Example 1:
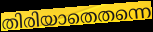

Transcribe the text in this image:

തിരിയാതെതന്നെ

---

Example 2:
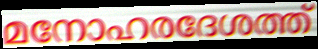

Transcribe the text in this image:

മനോഹരദേശത്ത്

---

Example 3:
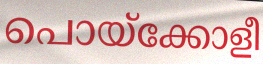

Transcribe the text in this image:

പൊയ്ക്കോളീ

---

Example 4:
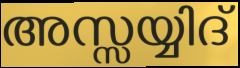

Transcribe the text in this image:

അസ്സയ്യിദ്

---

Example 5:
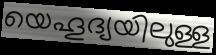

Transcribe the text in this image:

യെഹൂദ്യയിലുള്ള